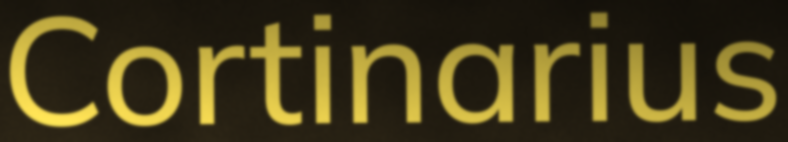
Cortinarius